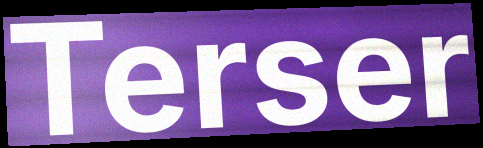
Terser